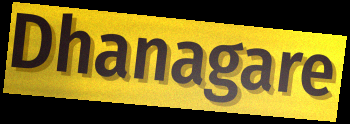
Dhanagare